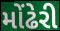
મોંઢેરી